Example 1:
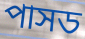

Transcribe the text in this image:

পাসড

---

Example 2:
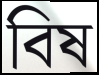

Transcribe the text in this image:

বিষ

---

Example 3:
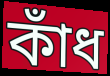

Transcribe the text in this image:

কাঁধ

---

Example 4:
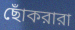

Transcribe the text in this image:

ছোঁকরারা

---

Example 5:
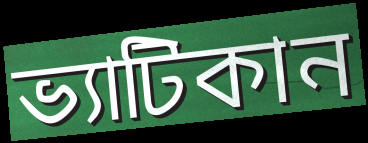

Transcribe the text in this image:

ভ্যাটিকান